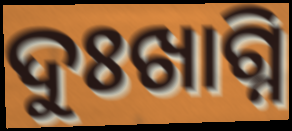
ଦୁଃଖାଗ୍ନି